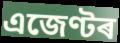
এজেণ্টৰ